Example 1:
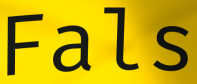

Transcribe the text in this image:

Fals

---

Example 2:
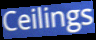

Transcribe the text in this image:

Ceilings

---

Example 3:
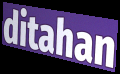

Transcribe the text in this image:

ditahan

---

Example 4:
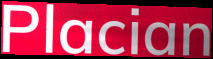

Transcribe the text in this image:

Placian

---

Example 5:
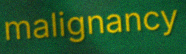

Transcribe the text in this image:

malignancy